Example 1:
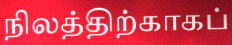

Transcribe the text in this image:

நிலத்திற்காகப்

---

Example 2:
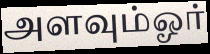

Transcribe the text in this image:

அளவும்ஓர்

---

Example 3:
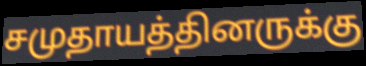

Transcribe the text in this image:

சமுதாயத்தினருக்கு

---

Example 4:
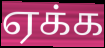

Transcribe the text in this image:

ஏக்க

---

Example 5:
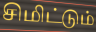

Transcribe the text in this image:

சிமிட்டும்